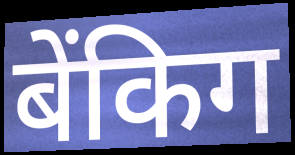
बेंकिग